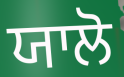
ਯਾਲੋ